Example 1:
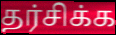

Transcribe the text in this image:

தர்சிக்க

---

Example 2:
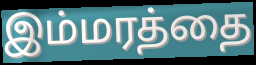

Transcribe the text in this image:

இம்மரத்தை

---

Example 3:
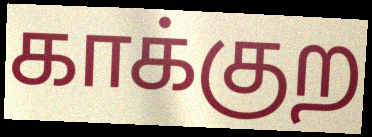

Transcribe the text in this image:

காக்குற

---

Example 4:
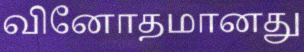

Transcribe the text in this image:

வினோதமானது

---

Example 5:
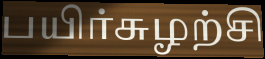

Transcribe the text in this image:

பயிர்சுழற்சி